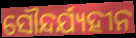
ସୌନ୍ଦର୍ଯ୍ୟହୀନ